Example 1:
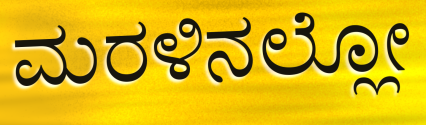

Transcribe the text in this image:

ಮರಳಿನಲ್ಲೋ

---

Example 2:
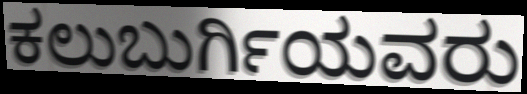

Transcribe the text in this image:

ಕಲುಬುರ್ಗಿಯವರು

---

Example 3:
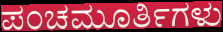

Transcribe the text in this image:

ಪಂಚಮೂರ್ತಿಗಳು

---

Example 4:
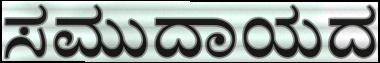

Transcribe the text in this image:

ಸಮುದಾಯದ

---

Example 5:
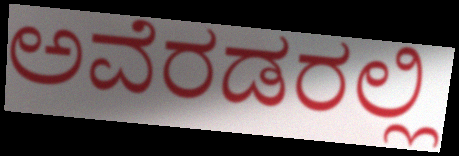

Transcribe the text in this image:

ಅವೆರಡರಲ್ಲಿ